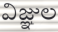
విజ్ఞుల